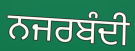
ਨਜਰਬੰਦੀ